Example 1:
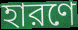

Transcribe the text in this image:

হারণে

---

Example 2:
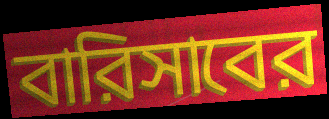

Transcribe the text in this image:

বারিসাবের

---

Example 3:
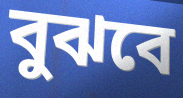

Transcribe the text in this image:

বুঝবে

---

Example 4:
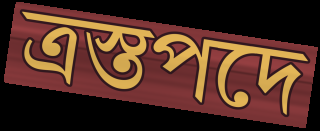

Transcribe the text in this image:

ত্রস্তপদে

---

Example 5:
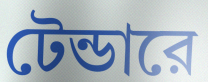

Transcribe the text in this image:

টেন্ডারে